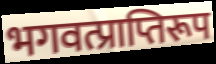
भगवत्प्राप्तिरूप